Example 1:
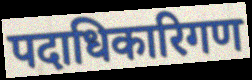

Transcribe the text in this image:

पदाधिकारिगण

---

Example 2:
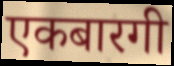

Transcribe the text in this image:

एकबारगी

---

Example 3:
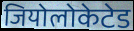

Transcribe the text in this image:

जियोलोकेटेड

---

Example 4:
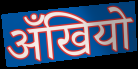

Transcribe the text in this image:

अँखियो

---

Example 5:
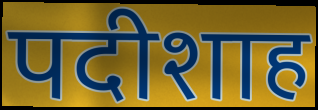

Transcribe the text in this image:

पदीशाह